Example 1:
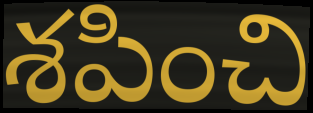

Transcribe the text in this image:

శపించి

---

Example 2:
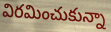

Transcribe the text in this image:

విరమించుకున్నా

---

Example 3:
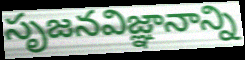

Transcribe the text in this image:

సృజనవిజ్ఞానాన్ని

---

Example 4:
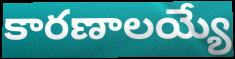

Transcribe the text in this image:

కారణాలయ్యే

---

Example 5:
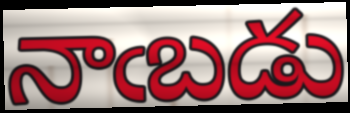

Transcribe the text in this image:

నాఁబడు